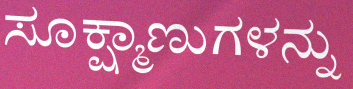
ಸೂಕ್ಷ್ಮಾಣುಗಳನ್ನು